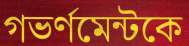
গভর্ণমেন্টকে